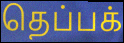
தெப்பக்